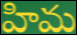
హిమ